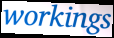
workings